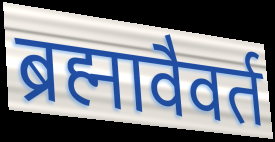
ब्रह्मावैवर्त